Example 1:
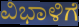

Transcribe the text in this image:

ವಿಭಾಳಿಗೆ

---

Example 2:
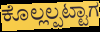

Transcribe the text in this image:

ಕೊಲ್ಲಲ್ಪಟ್ಟಾಗ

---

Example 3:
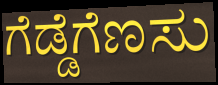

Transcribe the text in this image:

ಗೆಡ್ಡೆಗೆಣಸು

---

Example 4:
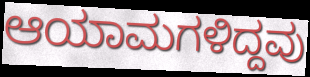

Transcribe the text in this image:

ಆಯಾಮಗಳಿದ್ದವು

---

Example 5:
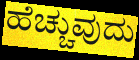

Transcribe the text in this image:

ಹೆಚ್ಚುವುದು